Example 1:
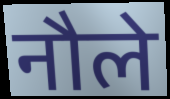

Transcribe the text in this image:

नौले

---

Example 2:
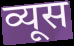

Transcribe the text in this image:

व्यूस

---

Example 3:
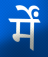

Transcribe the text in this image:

र्में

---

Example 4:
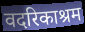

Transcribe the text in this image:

वदरिकाश्रम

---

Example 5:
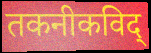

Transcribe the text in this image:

तकनीकविद्